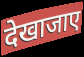
देखाजाए